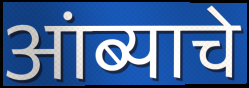
आंब्याचे